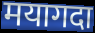
मयागदा